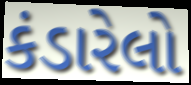
કંડારેલો